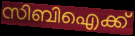
സിബിഐക്ക്